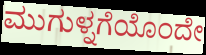
ಮುಗುಳ್ನಗೆಯೊಂದೇ